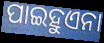
ପାଇହୁଏନା